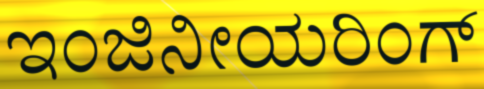
ಇಂಜಿನೀಯರಿಂಗ್